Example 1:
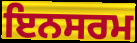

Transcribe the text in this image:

ਇਨਸਰਮ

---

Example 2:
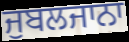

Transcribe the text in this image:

ਜੁਬਲਜਾਨਾ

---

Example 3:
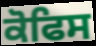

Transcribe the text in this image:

ਕੋਫਿਸ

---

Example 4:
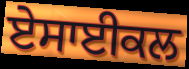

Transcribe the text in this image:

ਏਸਾਈਕਲ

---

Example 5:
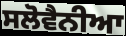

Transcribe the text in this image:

ਸਲੋਵੈਨੀਆ